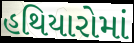
હથિયારોમાં